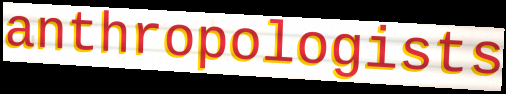
anthropologists